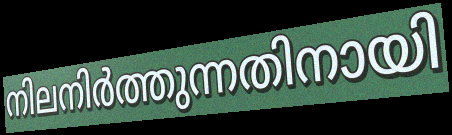
നിലനിർത്തുന്നതിനായി